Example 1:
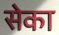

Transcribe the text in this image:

सेका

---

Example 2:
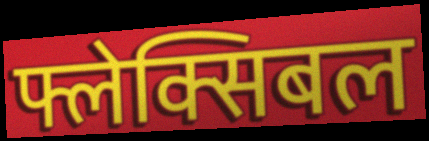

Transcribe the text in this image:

फ्लेक्सिबल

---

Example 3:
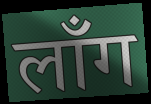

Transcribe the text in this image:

लाँग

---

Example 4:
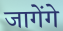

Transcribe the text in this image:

जागेंगे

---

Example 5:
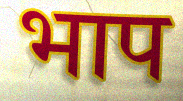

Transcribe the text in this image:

भाप